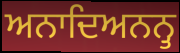
ਅਨਾਦਿਅਨਨ੍ਤ